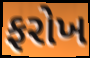
ફરોખ